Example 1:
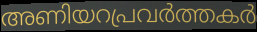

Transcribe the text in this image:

അണിയറപ്രവർത്തകർ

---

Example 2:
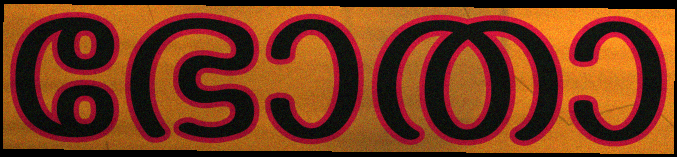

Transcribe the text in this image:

ഭോതാ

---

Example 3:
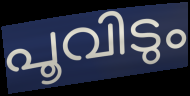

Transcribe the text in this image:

പൂവിടും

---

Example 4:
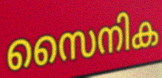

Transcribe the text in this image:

സൈനിക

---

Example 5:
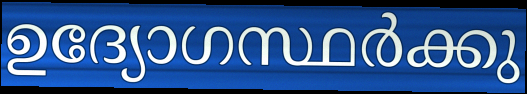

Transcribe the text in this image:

ഉദ്യോഗസ്ഥർക്കു